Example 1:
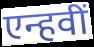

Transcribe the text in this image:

एन्हवीं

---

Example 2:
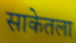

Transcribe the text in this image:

साकेतला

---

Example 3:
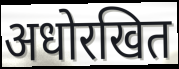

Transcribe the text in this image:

अधोरखित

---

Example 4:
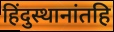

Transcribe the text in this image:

हिंदुस्थानांतहि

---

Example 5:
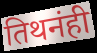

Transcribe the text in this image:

तिथनंही